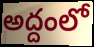
అద్దంలో